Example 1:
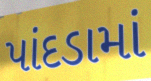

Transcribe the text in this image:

પાંદડામાં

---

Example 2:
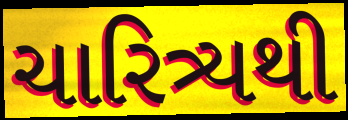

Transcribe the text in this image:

ચારિત્ર્યથી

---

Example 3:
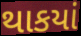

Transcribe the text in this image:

થાકયાં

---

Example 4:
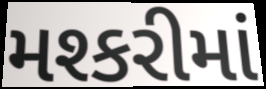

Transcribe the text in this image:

મશ્કરીમાં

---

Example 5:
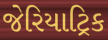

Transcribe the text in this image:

જેરિયાટ્રિક